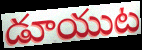
డూయుట